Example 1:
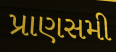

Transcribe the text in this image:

પ્રાણસમી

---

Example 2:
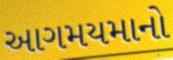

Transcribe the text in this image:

આગમયમાનો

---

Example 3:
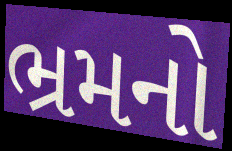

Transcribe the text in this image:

ભ્રમનો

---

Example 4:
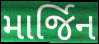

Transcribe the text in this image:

માર્જિન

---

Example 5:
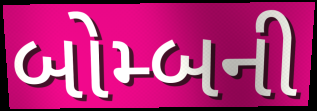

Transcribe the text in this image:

બોમ્બની